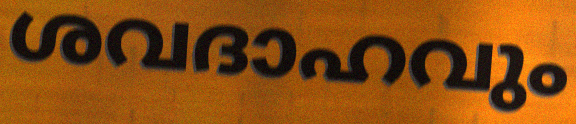
ശവദാഹവും